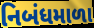
નિબંધમાળા